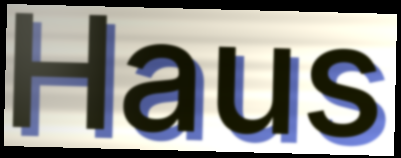
Haus